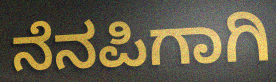
ನೆನಪಿಗಾಗಿ